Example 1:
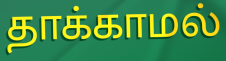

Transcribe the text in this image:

தாக்காமல்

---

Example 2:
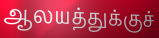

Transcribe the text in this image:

ஆலயத்துக்குச்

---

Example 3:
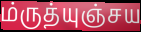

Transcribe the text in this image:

ம்ருத்யுஞ்சய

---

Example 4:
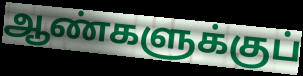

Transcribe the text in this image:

ஆண்களுக்குப்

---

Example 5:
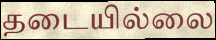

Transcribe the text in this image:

தடையில்லை